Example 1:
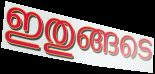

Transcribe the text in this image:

ഇതുങ്ങടെ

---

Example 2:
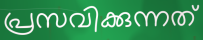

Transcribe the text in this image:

പ്രസവിക്കുന്നത്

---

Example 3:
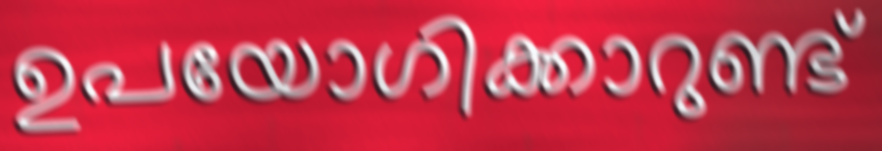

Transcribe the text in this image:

ഉപയോഗിക്കാറുണ്ട്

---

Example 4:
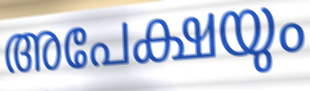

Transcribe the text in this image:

അപേക്ഷയും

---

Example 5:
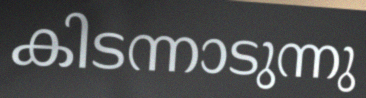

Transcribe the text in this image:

കിടന്നാടുന്നു